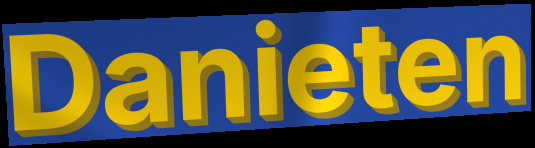
Danieten